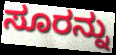
ಸೂರನ್ನು